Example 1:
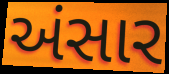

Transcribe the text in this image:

અંસાર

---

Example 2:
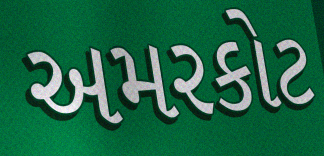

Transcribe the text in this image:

અમરકોટ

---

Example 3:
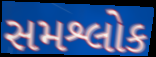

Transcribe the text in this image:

સમશ્લોક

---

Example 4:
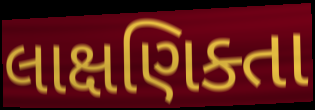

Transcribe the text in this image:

લાક્ષણિક્તા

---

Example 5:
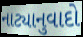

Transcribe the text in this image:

નાટ્યાનુવાદો